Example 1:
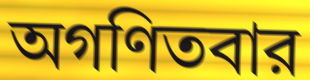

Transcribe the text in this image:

অগণিতবার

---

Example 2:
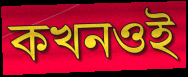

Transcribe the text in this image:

কখনওই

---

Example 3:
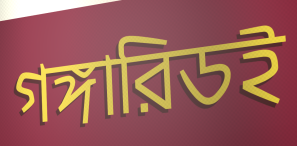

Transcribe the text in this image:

গঙ্গারিডই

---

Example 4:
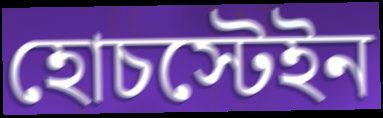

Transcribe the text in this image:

হোচস্টেইন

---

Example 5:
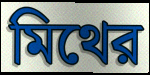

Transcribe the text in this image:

মিথের